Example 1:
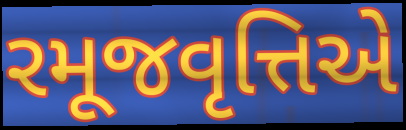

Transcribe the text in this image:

રમૂજવૃત્તિએ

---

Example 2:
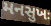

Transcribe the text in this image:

મનસુખઃ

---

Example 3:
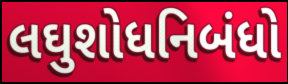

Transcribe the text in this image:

લઘુશોધનિબંધો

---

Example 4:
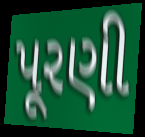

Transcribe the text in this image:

પૂરણી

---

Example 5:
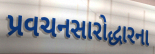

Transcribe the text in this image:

પ્રવચનસારોદ્ધારના